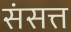
संसत्त